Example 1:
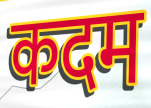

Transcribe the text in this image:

कदम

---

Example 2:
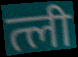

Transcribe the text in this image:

त्ली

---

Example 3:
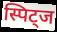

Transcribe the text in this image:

स्पिट्ज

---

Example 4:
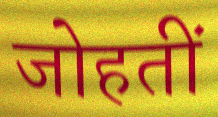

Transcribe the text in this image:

जोहतीं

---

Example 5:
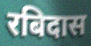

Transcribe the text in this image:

रबिदास